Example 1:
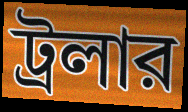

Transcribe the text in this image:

ট্রলার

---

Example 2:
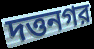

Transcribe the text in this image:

দত্তনগর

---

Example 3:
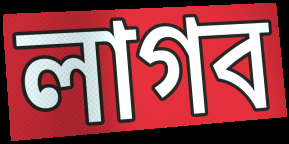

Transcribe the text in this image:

লাগব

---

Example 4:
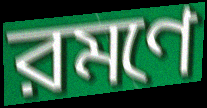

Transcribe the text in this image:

রমণে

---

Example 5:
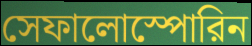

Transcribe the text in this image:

সেফালোস্পোরিন